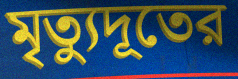
মৃত্যুদূতের